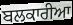
ਬਲਕਾਰੀਆ